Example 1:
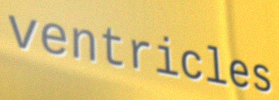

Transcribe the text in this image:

ventricles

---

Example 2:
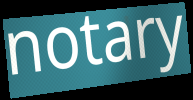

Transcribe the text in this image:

notary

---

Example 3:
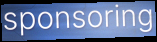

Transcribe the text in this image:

sponsoring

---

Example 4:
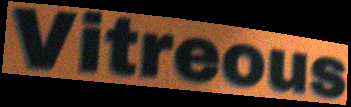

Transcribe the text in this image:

Vitreous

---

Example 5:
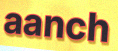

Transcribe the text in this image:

aanch